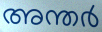
അന്തർ